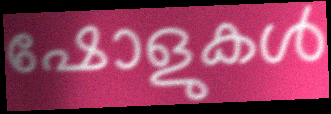
ഷോളുകൾ